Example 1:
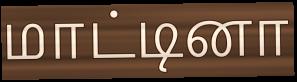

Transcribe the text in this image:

மாட்டினா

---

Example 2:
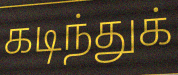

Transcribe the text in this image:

கடிந்துக்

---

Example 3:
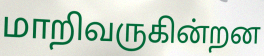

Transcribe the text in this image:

மாறிவருகின்றன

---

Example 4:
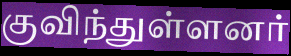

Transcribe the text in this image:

குவிந்துள்ளனர்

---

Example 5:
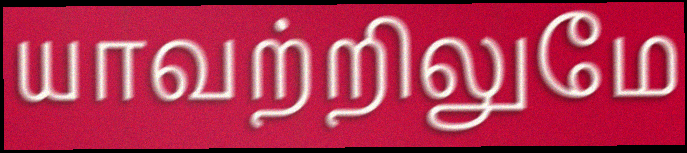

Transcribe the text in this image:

யாவற்றிலுமே